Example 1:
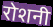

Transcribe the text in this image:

रोशनी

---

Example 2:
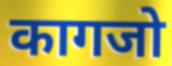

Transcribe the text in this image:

कागजो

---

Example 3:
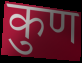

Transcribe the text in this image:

कुण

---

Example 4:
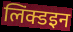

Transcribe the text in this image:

लिंक्डइन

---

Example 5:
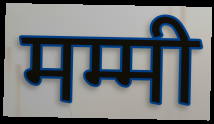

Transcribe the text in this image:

मम्मी